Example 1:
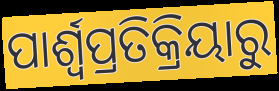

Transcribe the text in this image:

ପାର୍ଶ୍ୱପ୍ରତିକ୍ରିୟାରୁ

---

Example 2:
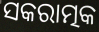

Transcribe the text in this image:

ସକରାତ୍ମକ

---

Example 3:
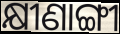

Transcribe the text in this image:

କ୍ଷୀଣାଙ୍ଗୀ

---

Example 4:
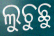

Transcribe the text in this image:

ଲୁଚୁଛୁ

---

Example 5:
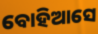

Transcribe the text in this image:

ବୋହିଆସେ